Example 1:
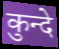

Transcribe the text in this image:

कुन्दे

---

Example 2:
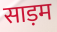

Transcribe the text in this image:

साड़म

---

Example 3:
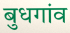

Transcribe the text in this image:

बुधगांव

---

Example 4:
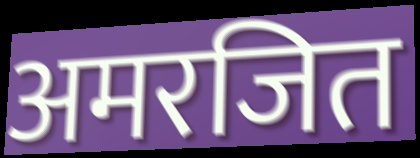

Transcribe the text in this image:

अमरजित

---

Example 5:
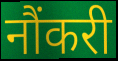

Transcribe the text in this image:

नौंकरी